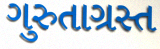
ગુરુતાગ્રસ્ત